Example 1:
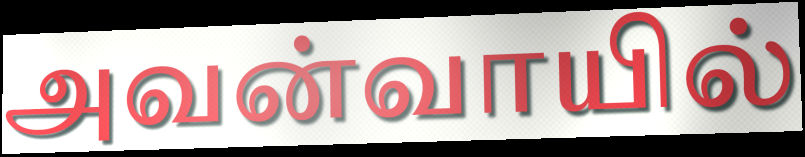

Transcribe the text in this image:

அவன்வாயில்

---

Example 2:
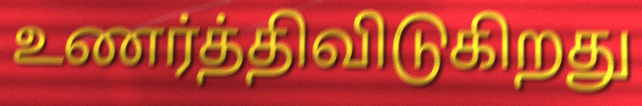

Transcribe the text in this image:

உணர்த்திவிடுகிறது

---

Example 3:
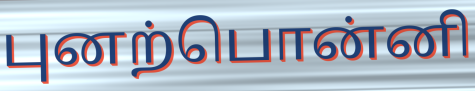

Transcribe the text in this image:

புனற்பொன்னி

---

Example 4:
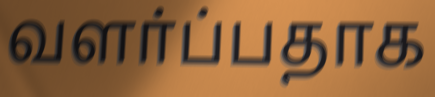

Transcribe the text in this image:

வளர்ப்பதாக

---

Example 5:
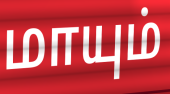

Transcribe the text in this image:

மாயும்